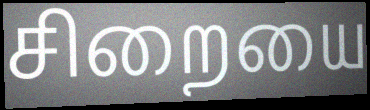
சிறையை